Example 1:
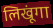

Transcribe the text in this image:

लिखूंगा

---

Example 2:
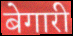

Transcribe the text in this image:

बेगारी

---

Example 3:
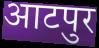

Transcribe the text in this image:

आटपुर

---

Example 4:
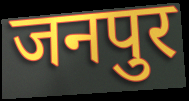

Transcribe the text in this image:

जनपुर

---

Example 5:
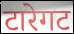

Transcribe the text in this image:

टारेगट